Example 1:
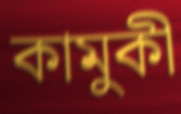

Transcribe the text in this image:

কামুকী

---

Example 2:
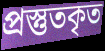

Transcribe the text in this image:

প্রস্তুতকৃত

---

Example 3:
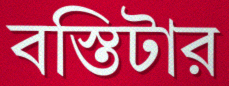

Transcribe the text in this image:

বস্তিটার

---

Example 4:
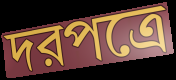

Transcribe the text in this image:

দরপত্রে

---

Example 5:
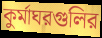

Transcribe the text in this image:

কুর্মাঘরগুলির